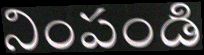
నింపండి